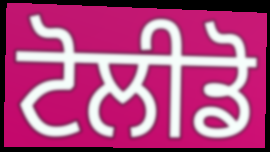
ਟੋਲੀਡੋ